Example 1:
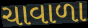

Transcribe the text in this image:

ચાવાળા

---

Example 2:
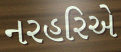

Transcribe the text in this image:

નરહરિએ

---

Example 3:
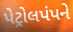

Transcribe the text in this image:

પેટ્રોલપંપને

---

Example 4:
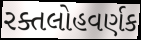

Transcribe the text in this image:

રક્તલોહવર્ણક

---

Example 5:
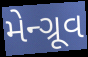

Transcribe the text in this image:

મેન્ગ્રૂવ